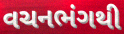
વચનભંગથી